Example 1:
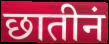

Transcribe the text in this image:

छातीनं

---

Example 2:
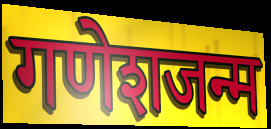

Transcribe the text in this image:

गणेशजन्म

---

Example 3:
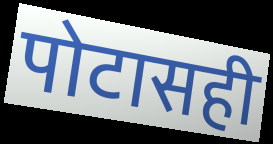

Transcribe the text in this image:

पोटासही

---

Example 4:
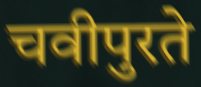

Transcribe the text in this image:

चवीपुरते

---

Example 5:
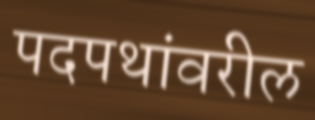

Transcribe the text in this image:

पदपथांवरील